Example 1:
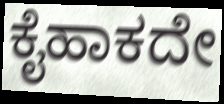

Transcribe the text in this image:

ಕೈಹಾಕದೇ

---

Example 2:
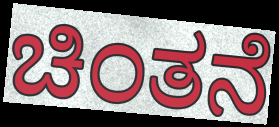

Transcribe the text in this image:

ಚಿಂತನೆ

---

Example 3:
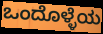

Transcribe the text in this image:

ಒಂದೊಳ್ಳೆಯ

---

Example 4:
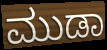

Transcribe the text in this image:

ಮುಡಾ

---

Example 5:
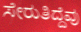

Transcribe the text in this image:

ಸೇರುತಿದ್ದೆವು